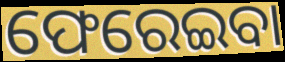
ଫେରେଇବା